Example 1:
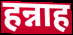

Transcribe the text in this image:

हन्नाह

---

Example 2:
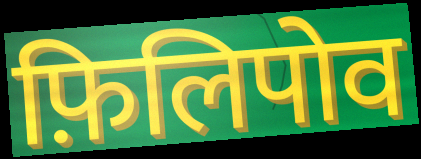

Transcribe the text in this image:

फ़िलिपोव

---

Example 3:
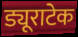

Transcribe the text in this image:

ड्यूराटेक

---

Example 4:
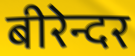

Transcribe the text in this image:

बीरेन्दर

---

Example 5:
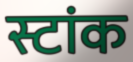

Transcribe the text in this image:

स्टांक